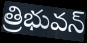
త్రిభువన్